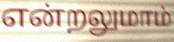
என்றலுமாம்